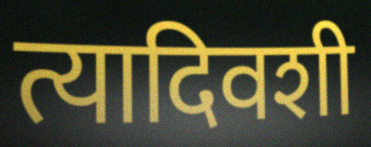
त्यादिवशी